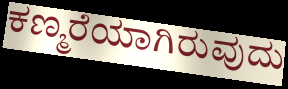
ಕಣ್ಮರೆಯಾಗಿರುವುದು